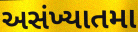
અસંખ્યાતમા